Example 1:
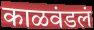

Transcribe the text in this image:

काळवंडलं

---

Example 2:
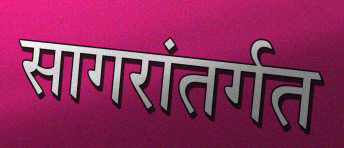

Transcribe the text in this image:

सागरांतर्गत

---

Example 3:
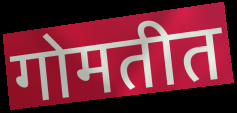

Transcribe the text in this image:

गोमतीत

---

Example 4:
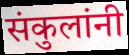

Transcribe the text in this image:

संकुलांनी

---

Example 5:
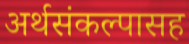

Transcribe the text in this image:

अर्थसंकल्पासह